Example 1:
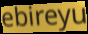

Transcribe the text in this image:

ebireyu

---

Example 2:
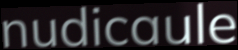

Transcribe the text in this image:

nudicaule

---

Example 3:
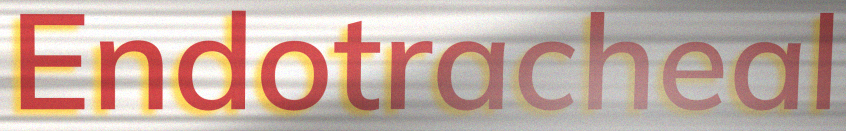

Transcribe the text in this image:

Endotracheal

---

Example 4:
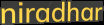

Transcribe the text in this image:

niradhar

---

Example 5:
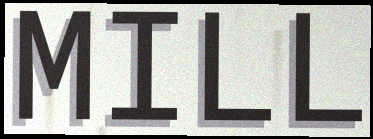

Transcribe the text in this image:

MILL